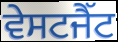
ਵੇਸਟਜੈੱਟ